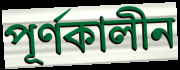
পূৰ্ণকালীন